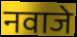
नवाजे